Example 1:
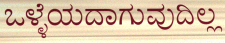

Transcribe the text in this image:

ಒಳ್ಳೆಯದಾಗುವುದಿಲ್ಲ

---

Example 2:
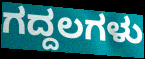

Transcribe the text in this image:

ಗದ್ದಲಗಳು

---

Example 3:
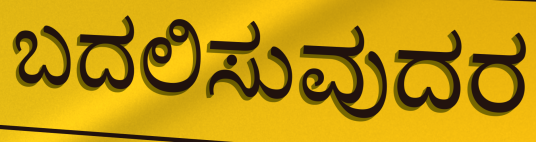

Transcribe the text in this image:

ಬದಲಿಸುವುದರ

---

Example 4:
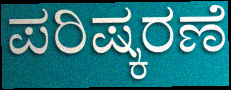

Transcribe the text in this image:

ಪರಿಷ್ಕರಣೆ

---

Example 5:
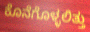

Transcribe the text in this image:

ಕೊನೆಗೊಳ್ಳಲಿತ್ತು